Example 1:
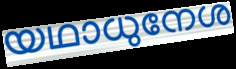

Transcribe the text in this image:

യഥാധുനേശ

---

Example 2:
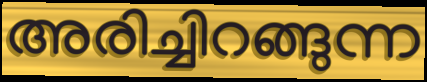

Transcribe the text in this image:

അരിച്ചിറങ്ങുന്ന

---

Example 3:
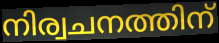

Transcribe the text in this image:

നിര്വചനത്തിന്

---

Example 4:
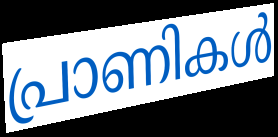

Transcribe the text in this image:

പ്രാണികൾ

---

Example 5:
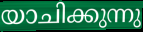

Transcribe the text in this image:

യാചിക്കുന്നു